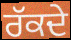
ਰੱਕਦੇ